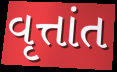
વૃત્તાંત